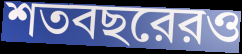
শতবছরেরও